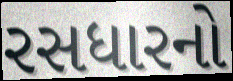
રસધારનો